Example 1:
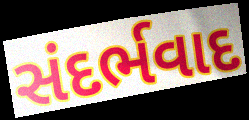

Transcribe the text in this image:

સંદર્ભવાદ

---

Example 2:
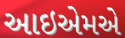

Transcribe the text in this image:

આઇએમએ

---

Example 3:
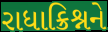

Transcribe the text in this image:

રાધાક્રિશ્નને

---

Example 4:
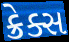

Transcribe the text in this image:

ક્રેક્સ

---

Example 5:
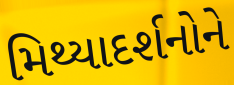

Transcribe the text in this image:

મિથ્યાદર્શનોને